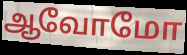
ஆவோமோ